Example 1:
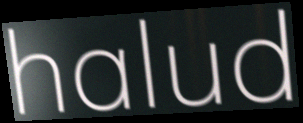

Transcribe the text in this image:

halud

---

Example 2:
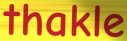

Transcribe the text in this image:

thakle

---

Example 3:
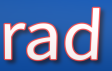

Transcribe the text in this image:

rad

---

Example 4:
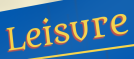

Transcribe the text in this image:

Leisure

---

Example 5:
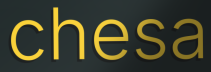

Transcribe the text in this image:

chesa